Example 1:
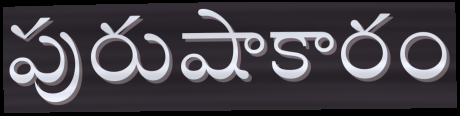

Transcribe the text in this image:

పురుషాకారం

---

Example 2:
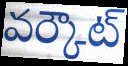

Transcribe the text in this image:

వర్కౌట్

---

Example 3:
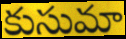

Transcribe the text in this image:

కుసుమా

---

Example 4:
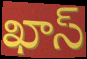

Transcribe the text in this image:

ఖాస్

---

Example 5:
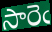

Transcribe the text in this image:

సారెఁ